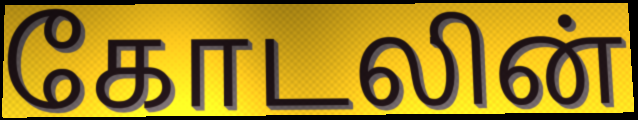
கோடலின்